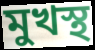
মুখস্থ